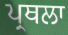
ਪ੍ਰਥਲਾ